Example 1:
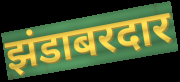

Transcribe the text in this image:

झंडाबरदार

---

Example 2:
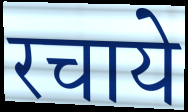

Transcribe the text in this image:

रचाये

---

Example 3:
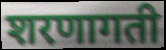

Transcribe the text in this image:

शरणागती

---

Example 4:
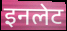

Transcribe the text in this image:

इनलेट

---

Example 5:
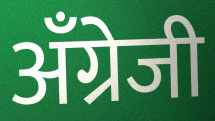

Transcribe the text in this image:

अँग्रेजी